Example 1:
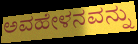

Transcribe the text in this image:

ಅವಹೇಳನವನ್ನು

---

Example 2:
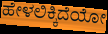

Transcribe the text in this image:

ಹೇಳಲಿಕ್ಕಿದೆಯೋ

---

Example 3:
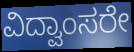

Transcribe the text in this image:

ವಿದ್ವಾಂಸರೇ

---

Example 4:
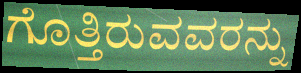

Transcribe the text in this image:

ಗೊತ್ತಿರುವವರನ್ನು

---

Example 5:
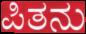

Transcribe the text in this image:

ಪಿತನು